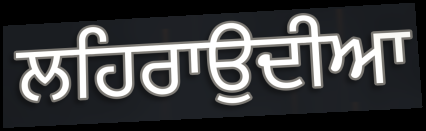
ਲਹਿਰਾਉਦੀਆ